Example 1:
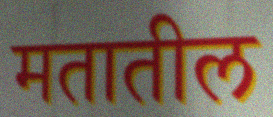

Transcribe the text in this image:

मतातील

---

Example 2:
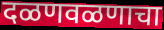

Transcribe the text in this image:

दळणवळणाचा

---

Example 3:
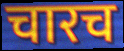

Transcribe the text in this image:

चारच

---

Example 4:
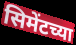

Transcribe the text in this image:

सिमेंटच्या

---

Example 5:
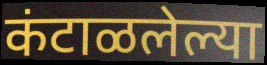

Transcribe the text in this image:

कंटाळलेल्या